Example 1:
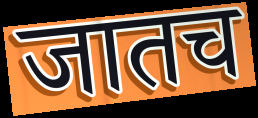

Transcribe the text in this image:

जातच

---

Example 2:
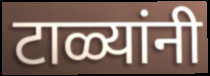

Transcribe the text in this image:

टाळ्यांनी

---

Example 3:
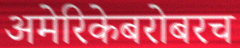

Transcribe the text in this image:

अमेरिकेबरोबरच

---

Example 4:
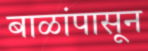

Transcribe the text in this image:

बाळांपासून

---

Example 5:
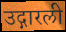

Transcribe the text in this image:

उद्गारली